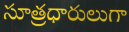
సూత్రధారులుగా